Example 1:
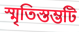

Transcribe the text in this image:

স্মৃতিস্তম্ভটি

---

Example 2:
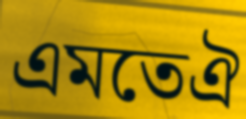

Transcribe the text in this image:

এমতেঐ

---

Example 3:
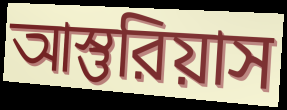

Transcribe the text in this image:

আস্তুরিয়াস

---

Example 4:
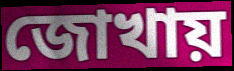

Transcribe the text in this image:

জোখায়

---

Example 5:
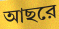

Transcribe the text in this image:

আছরে